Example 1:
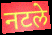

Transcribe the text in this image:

नटले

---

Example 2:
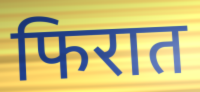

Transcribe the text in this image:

फिरात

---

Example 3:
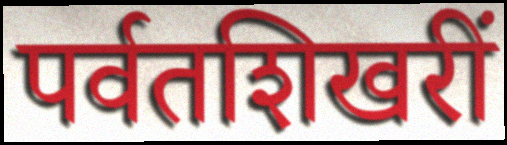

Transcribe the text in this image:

पर्वतशिखरीं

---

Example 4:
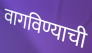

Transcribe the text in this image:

वागविण्याची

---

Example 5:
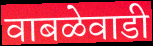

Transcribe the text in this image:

वाबळेवाडी